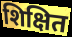
शिक्षित